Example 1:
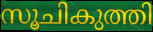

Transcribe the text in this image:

സൂചികുത്തി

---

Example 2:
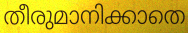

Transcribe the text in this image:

തീരുമാനിക്കാതെ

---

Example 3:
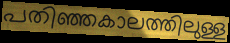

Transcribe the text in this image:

പതിഞ്ഞകാലത്തിലുള്ള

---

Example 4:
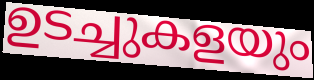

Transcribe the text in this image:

ഉടച്ചുകളയും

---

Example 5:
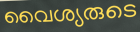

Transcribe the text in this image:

വൈശ്യരുടെ